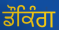
ਡੌਕਿੰਗ